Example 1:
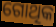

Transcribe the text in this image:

ଗୋଥିକ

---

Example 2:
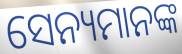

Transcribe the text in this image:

ସେନ୍ୟମାନଙ୍କ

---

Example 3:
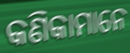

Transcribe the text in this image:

କଣିକାମାନେ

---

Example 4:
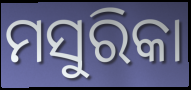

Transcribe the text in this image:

ମସୁରିକା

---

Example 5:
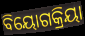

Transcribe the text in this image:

ବିୟୋଗକ୍ରିୟା